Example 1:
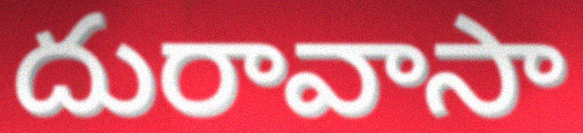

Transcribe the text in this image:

దురావాసా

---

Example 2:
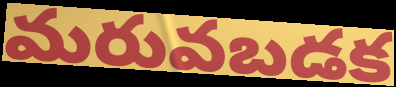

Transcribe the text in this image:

మరువబడక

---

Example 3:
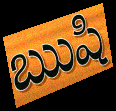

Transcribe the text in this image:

ఋషి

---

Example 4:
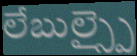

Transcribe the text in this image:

లేబుల్స్పై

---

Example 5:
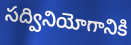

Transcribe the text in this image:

సద్వినియోగానికి